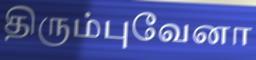
திரும்புவேனா